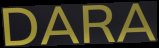
DARA